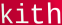
kith